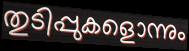
തുടിപ്പുകളൊന്നും